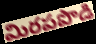
మిరపపొడి